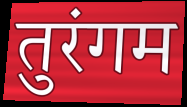
तुरंगम